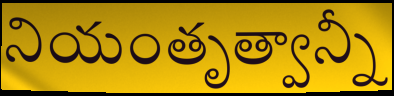
నియంతృత్వాన్నీ